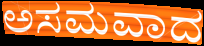
ಅಸಮವಾದ